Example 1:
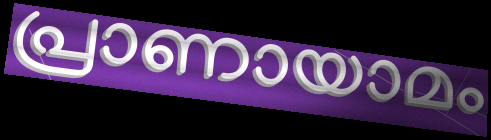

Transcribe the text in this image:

പ്രാണായാമം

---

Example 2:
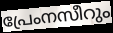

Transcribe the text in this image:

പ്രേംനസീറും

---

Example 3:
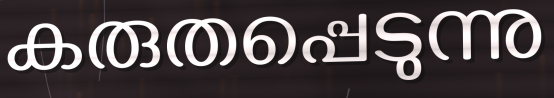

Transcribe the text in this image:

കരുതപ്പെടുന്നു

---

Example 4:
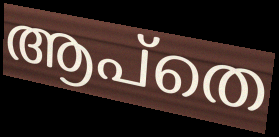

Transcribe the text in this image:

ആപ്‌തെ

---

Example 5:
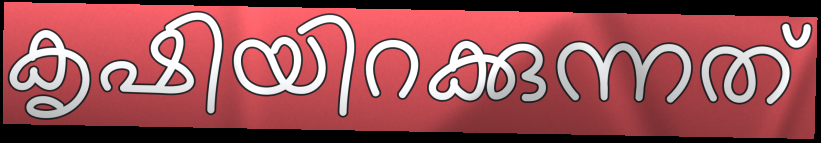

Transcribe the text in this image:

കൃഷിയിറക്കുന്നത്